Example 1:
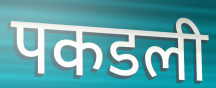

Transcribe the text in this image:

पकडली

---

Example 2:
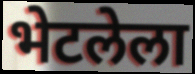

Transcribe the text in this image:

भेटलेला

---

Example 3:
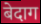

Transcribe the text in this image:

बेदाग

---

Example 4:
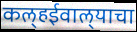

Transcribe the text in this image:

कल्हईवाल्याचा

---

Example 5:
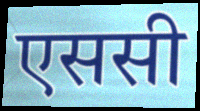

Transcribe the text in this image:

एससी